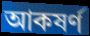
আকষৰ্ণ